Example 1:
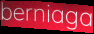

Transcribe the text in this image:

berniaga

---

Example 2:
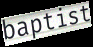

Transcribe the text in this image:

baptist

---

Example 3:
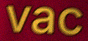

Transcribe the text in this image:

vac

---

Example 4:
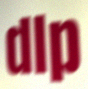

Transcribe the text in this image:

dlp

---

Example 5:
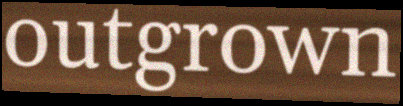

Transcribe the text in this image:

outgrown